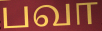
பவா